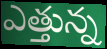
ఎత్తున్న